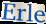
Erle